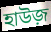
হাউজ়